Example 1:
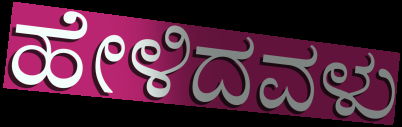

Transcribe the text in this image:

ಹೇಳಿದವಳು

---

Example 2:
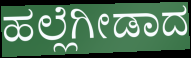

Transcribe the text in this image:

ಹಲ್ಲೆಗೀಡಾದ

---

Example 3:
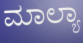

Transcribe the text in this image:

ಮಾಲ್ಯಾ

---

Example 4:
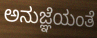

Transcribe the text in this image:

ಅನುಜ್ಞೆಯಂತೆ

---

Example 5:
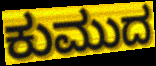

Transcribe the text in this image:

ಕುಮುದ